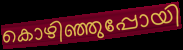
കൊഴിഞ്ഞുപ്പോയി